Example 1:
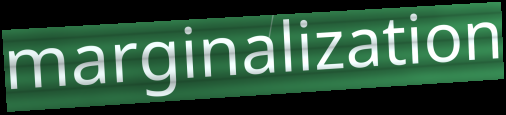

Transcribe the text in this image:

marginalization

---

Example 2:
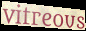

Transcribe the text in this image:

vitreous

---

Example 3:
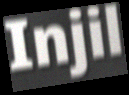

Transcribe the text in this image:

Injil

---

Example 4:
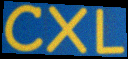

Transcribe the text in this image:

CXL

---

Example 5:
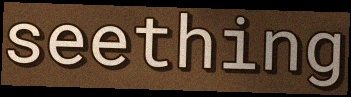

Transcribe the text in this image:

seething